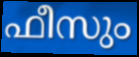
ഫീസും